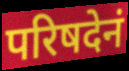
परिषदेनं